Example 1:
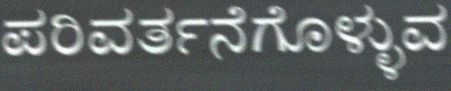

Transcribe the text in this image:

ಪರಿವರ್ತನೆಗೊಳ್ಳುವ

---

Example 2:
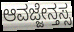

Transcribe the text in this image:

ಆವಜ್ಜೇನ್ತಸ್ಸ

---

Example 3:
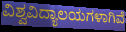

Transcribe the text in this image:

ವಿಶ್ವವಿದ್ಯಾಲಯಗಳಾಗಿವೆ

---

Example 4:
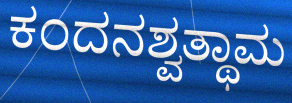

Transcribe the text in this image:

ಕಂದನಶ್ವತ್ಥಾಮ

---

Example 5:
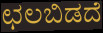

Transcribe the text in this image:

ಛಲಬಿಡದೆ